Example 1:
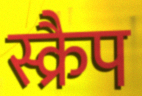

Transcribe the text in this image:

स्क्रैप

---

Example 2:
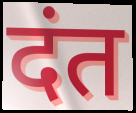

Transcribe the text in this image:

दंत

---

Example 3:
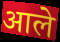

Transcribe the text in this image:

आले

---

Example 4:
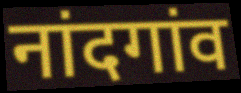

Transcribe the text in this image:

नांदगांव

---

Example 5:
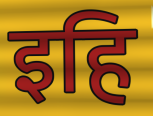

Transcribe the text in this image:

इहि